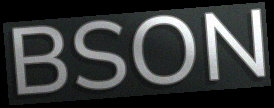
BSON